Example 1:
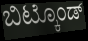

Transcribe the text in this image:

ಬಿಟ್ಕೊಂಡ್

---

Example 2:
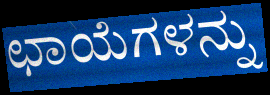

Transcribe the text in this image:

ಛಾಯೆಗಳನ್ನು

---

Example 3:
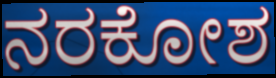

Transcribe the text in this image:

ನರಕೋಶ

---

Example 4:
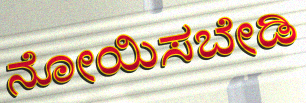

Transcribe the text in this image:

ನೋಯಿಸಬೇಡಿ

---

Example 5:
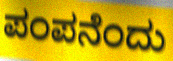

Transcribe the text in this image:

ಪಂಪನೆಂದು